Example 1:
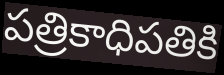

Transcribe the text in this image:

పత్రికాధిపతికి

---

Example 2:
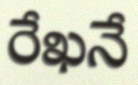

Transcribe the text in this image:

రేఖనే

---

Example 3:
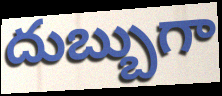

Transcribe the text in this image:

దుబ్బుగా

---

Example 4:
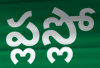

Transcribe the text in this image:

ప్లస్లో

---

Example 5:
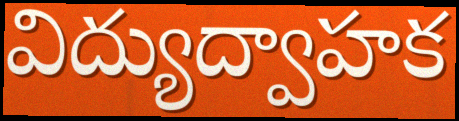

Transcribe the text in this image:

విద్యుద్వాహక